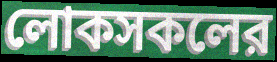
লোকসকলের